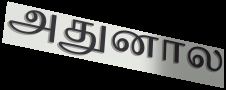
அதுனால